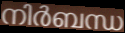
നിർബന്ധ